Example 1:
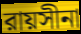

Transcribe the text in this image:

রায়সীনা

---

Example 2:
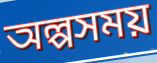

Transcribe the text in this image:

অল্পসময়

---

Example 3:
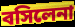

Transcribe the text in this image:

বসিলেনা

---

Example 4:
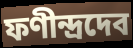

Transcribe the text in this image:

ফণীন্দ্রদেব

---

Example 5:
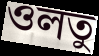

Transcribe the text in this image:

ওলতু